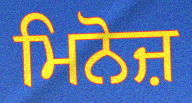
ਮਿਨੋਜ਼